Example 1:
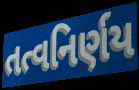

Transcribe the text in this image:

તત્વનિર્ણય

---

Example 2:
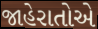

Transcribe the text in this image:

જાહેરાતોએ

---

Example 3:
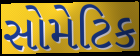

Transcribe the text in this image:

સોમેટિક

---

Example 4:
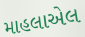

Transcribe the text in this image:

માહલાએલ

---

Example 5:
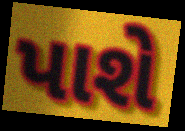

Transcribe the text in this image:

પાશે